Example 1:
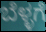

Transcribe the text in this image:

ಬೆಳ್ಳಗೆ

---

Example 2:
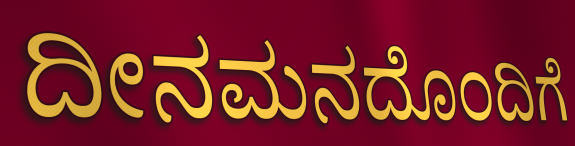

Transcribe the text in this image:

ದೀನಮನದೊಂದಿಗೆ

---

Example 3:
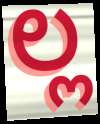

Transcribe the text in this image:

ಲ್ಲ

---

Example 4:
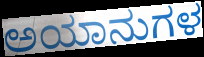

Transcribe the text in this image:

ಅಯಾನುಗಳ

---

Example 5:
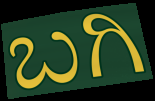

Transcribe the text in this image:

ಬಗಿ